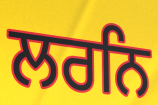
ਲਰਨਿ